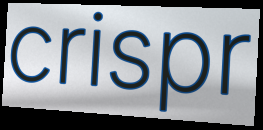
crispr